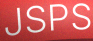
JSPS